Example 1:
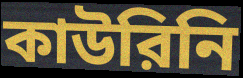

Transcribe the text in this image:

কাউরিনি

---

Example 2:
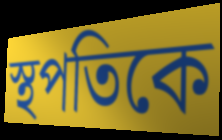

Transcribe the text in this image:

স্থপতিকে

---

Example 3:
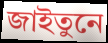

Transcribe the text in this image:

জাইতুনে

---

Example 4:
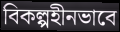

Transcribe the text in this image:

বিকল্পহীনভাবে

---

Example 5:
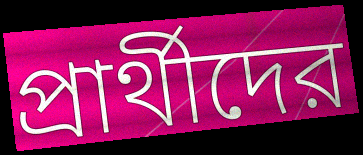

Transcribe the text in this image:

প্রার্থীদের